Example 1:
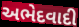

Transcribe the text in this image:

અભેદવાદી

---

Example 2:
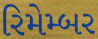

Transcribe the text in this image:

રિમેમ્બર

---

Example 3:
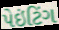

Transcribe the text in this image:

પેઇંટિંગ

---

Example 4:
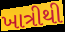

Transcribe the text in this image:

ખાત્રીથી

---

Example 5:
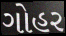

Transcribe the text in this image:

ગોહર